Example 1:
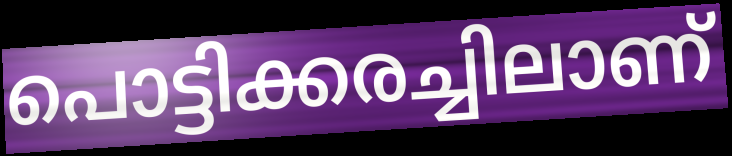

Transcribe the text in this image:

പൊട്ടിക്കരച്ചിലാണ്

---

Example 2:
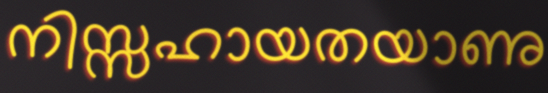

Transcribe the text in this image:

നിസ്സഹായതയാണു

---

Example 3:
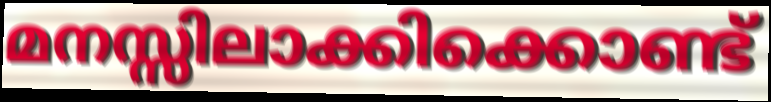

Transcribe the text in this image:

മനസ്സിലാക്കിക്കൊണ്ട്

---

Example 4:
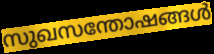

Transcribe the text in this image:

സുഖസന്തോഷങ്ങൾ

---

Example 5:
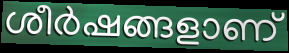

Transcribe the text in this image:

ശീർഷങ്ങളാണ്